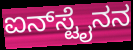
ಐನ್‌ಸ್ಟೈನನ